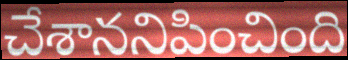
చేశాననిపించింది